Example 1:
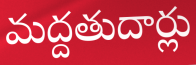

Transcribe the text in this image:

మద్దతుదార్లు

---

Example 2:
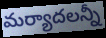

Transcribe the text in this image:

మర్యాదలన్నీ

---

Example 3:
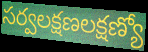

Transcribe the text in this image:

సర్వలక్షణలక్షణ్యో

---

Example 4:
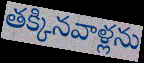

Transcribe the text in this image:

తక్కినవాళ్లను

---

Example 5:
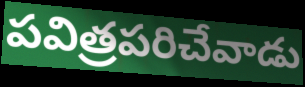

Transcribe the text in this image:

పవిత్రపరిచేవాడు